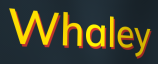
Whaley